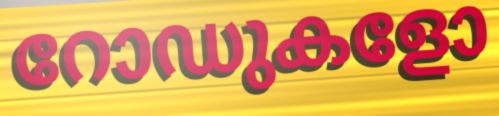
റോഡുകളോ